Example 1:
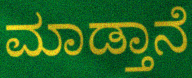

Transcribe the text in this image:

ಮಾಡ್ತಾನೆ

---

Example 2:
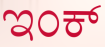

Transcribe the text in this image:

ಇಂಕ್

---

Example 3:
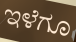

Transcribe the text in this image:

ಇಳೆಗೂ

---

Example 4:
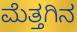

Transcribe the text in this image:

ಮೆತ್ತಗಿನ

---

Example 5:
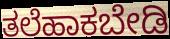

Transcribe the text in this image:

ತಲೆಹಾಕಬೇಡಿ